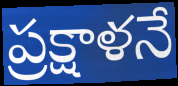
ప్రక్షాళనే